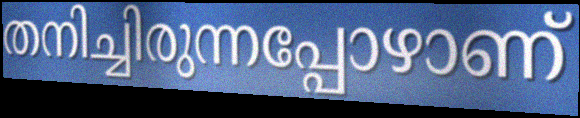
തനിച്ചിരുന്നപ്പോഴാണ്